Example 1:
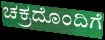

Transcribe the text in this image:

ಚಕ್ರದೊಂದಿಗೆ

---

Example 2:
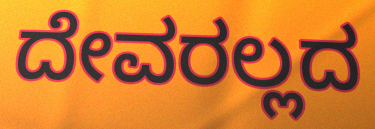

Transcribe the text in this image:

ದೇವರಲ್ಲದ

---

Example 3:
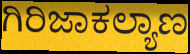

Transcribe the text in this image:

ಗಿರಿಜಾಕಲ್ಯಾಣ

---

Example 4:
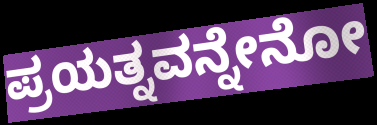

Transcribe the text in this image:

ಪ್ರಯತ್ನವನ್ನೇನೋ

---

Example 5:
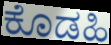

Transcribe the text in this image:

ಕೊಡಹಿ